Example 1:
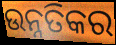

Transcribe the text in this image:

ଉନ୍ନତିକର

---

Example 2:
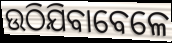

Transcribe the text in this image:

ଉଠିଯିବାବେଳେ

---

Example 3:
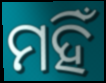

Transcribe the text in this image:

ମହିଁ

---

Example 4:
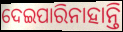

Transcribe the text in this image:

ଦେଇପାରିନାହାନ୍ତି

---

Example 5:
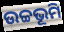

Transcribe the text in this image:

ଉଚ୍ଚଭୂମି